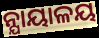
ନ୍ଯାୟାଳୟ